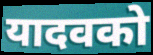
यादवको